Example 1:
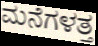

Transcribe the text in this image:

ಮನೆಗಳತ್ತ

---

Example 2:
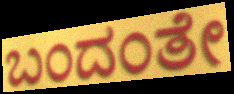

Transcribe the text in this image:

ಬಂದಂತೇ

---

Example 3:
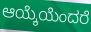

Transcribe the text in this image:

ಆಯ್ಕೆಯೆಂದರೆ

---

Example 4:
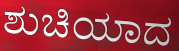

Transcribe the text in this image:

ಶುಚಿಯಾದ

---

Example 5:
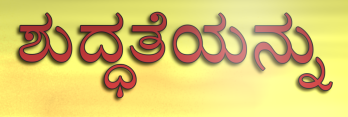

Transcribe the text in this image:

ಶುದ್ಧತೆಯನ್ನು